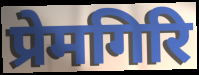
प्रेमगिरि